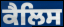
ਕੈਲਿਸ